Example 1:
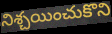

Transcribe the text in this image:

నిశ్చయించుకొని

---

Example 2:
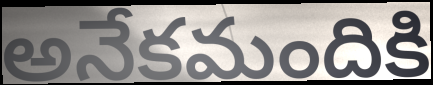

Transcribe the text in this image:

అనేకమందికి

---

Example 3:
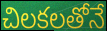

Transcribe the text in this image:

చిలకలతోనే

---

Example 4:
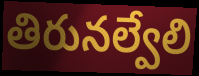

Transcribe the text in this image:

తిరునల్వేలి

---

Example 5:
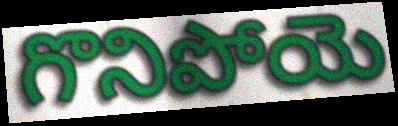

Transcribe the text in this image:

గొనిపోయె